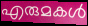
എരുമകൾ